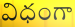
విధంగా